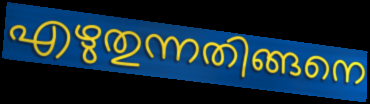
എഴുതുന്നതിങ്ങനെ